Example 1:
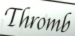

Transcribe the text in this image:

Thromb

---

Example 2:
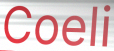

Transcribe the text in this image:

Coeli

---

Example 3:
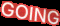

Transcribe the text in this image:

GOING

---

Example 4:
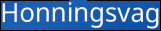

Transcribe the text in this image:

Honningsvag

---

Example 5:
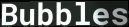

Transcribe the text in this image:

Bubbles